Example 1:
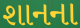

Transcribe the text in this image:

શાનના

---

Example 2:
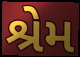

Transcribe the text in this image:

શ્રેમ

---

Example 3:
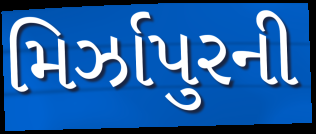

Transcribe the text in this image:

મિર્ઝાપુરની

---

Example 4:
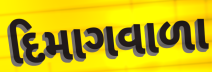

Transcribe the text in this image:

દિમાગવાળા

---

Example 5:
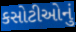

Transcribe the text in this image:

કસોટીઓનું